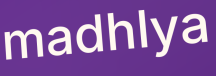
madhlya